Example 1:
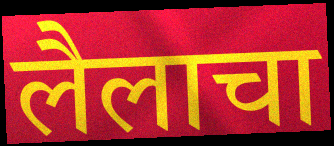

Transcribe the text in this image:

लैलाचा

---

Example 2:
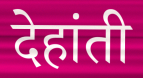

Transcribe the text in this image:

देहांती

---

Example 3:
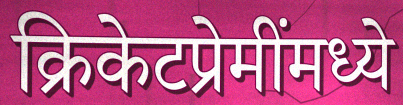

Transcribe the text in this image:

क्रिकेटप्रेमींमध्ये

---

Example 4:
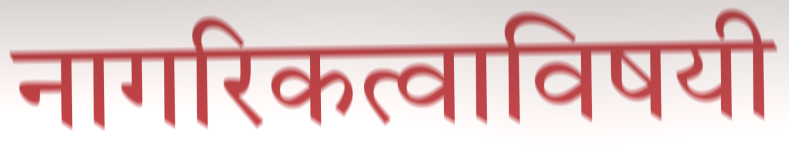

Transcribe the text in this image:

नागरिकत्वाविषयी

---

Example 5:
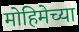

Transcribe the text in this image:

मोहिमेच्या